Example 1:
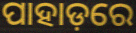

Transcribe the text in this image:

ପାହାଡ଼ରେ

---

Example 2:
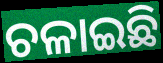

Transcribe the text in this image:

ଚଳାଇଛି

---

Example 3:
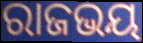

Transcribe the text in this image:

ରାଜଭୟ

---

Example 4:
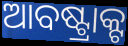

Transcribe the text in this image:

ଆବଷ୍ଟ୍ରାକ୍ଟ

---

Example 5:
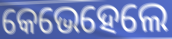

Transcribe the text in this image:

କେଭେହେଲେ